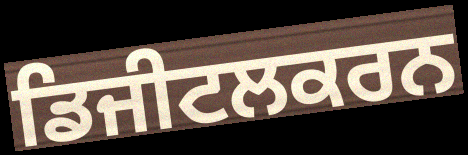
ਡਿਜੀਟਲਕਰਨ